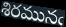
శిరమునఁ